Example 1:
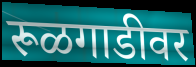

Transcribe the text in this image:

रूळगाडीवर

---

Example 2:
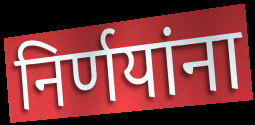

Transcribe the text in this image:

निर्णयांना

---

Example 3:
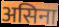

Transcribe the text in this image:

असिना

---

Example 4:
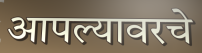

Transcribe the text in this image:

आपल्यावरचे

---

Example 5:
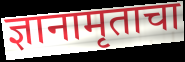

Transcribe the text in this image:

ज्ञानामृताचा